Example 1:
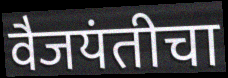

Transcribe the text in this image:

वैजयंतीचा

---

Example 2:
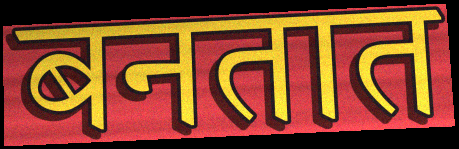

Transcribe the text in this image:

बनतात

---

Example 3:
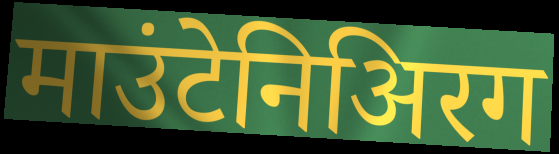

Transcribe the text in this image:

माउंटेनिअिरग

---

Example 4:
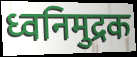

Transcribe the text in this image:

ध्वनिमुद्रक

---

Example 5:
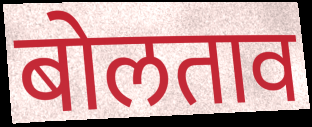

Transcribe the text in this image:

बोलताव